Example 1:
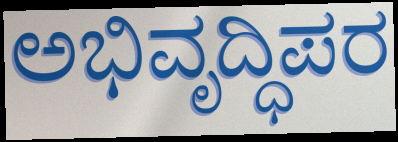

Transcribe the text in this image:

ಅಭಿವೃದ್ಧಿಪರ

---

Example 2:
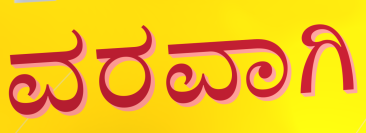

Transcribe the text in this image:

ವರವಾಗಿ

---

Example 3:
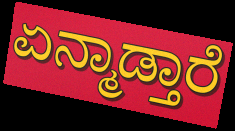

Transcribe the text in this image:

ಏನ್ಮಾಡ್ತಾರೆ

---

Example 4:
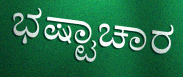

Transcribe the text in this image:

ಭಷ್ಟಾಚಾರ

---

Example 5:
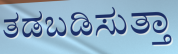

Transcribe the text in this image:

ತಡಬಡಿಸುತ್ತಾ